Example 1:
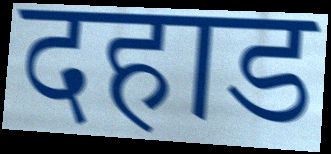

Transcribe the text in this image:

दहाड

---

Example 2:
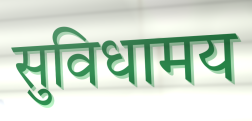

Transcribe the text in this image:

सुविधामय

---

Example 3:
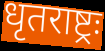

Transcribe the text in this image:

धृतराष्ट्रः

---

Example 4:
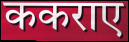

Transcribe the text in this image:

ककराए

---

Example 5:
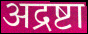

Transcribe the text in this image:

अद्रष्टा